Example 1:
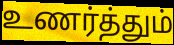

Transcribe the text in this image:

உணர்த்தும்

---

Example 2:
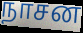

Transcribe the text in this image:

நாசன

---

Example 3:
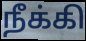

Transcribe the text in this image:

நீக்கி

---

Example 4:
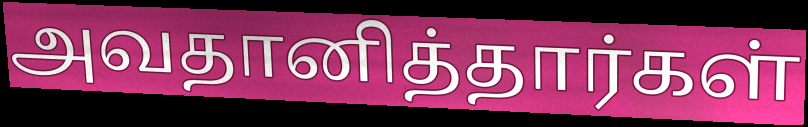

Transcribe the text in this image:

அவதானித்தார்கள்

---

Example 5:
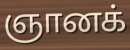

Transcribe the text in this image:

ஞானக்